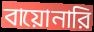
বায়োনারি